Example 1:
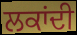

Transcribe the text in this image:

ਲਕਾਂਦੀ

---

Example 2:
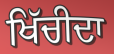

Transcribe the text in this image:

ਖਿੱਚੀਦਾ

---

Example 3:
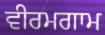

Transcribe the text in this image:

ਵੀਰਮਗਾਮ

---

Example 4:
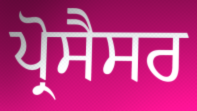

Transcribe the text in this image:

ਪ੍ਰੋਸੈਸਰ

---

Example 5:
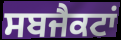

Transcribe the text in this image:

ਸਬਜੈਕਟਾਂ